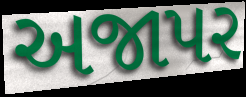
અજાપર